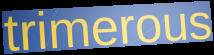
trimerous